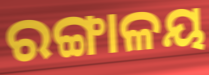
ରଙ୍ଗାଳୟ